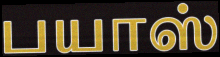
பயாஸ்